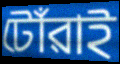
টোঁৱাই